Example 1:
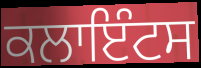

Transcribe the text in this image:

ਕਲਾਇੰਟਸ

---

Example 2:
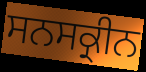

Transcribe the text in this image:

ਸਨਸਕ੍ਰੀਨ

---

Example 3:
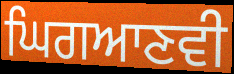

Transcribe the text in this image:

ਘਿਗਆਣਵੀ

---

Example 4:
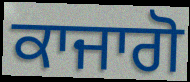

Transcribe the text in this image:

ਕਾਜਾਗੋ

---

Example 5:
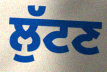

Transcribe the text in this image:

ਲੁੱਟਣ